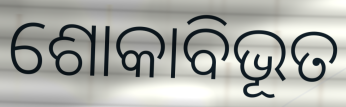
ଶୋକାବିଭୂତ